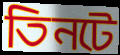
তিনটে